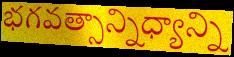
భగవత్సాన్నిధ్యాన్ని